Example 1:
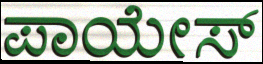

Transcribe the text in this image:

ಪಾಯೇಸ್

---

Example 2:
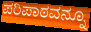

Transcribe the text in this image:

ಪರಿಪಾಠವನ್ನೂ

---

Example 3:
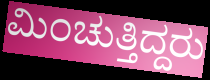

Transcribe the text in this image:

ಮಿಂಚುತ್ತಿದ್ದರು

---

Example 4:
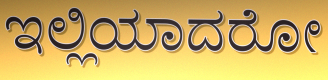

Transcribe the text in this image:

ಇಲ್ಲಿಯಾದರೋ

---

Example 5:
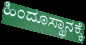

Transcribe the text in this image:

ಹಿಂದೂಸ್ಥಾನಕ್ಕೆ